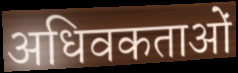
अधिवकताओं